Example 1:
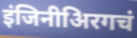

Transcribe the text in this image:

इंजिनीअिरगचं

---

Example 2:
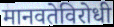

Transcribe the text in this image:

मानवतेविरोधी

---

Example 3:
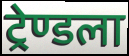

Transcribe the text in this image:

ट्रेण्डला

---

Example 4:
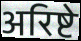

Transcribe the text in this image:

अरिष्टे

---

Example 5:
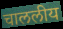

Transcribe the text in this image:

चाललीय